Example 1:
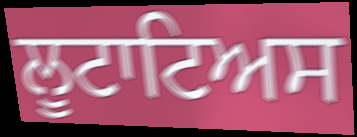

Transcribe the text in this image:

ਲੂਟਾਟਿਅਸ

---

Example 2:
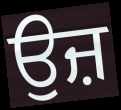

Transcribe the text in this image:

ਉਜ਼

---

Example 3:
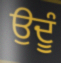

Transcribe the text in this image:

ਉਦੂੰ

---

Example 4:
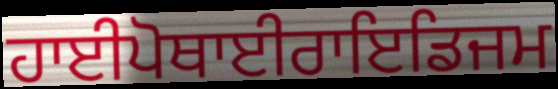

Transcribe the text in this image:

ਹਾਈਪੋਥਾਈਰਾਇਡਿਜਮ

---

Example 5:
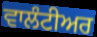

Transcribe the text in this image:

ਵਾਲੰਟੀਅਰ